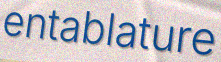
entablature